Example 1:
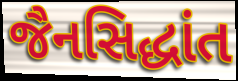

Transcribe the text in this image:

જૈનસિદ્ધાંત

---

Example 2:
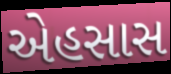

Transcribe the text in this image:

એહસાસ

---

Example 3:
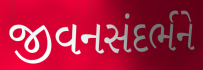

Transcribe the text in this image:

જીવનસંદર્ભને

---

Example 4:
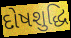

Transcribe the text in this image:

દોષશુદ્ધિ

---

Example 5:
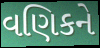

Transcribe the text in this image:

વણિકને